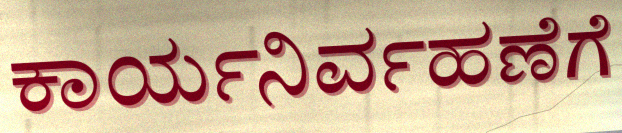
ಕಾರ್ಯನಿರ್ವಹಣೆಗೆ